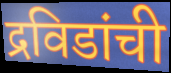
द्रविडांची